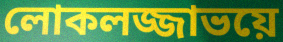
লোকলজ্জাভয়ে